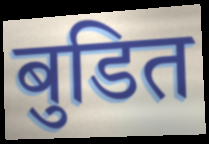
बुडित